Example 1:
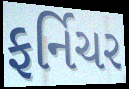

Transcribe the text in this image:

ફર્નિચર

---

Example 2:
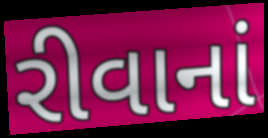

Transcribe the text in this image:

રીવાનાં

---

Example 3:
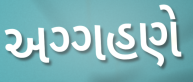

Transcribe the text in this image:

અગ્ગહણે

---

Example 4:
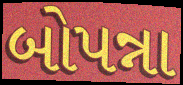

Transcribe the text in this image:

બોપન્ના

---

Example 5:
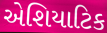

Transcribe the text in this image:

એશિયાટિક